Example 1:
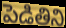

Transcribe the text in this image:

పెడితిని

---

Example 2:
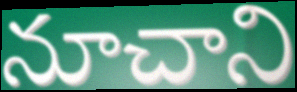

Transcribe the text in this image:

నూచాని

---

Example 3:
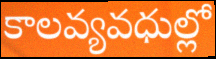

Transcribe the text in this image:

కాలవ్యవధుల్లో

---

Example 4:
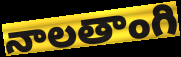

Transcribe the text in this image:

నాలతాంగి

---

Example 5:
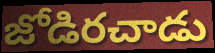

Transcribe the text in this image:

జోడిరచాడు